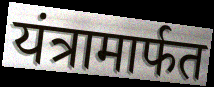
यंत्रामार्फत